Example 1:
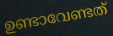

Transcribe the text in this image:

ഉണ്ടാവേണ്ടത്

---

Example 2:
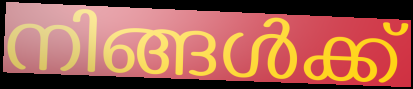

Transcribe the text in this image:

നിങ്ങൾക്ക്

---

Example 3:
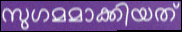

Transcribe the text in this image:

സുഗമമാക്കിയത്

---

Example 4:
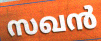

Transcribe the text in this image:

സഖൻ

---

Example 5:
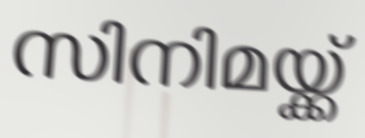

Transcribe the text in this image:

സിനിമയ്ക്ക്